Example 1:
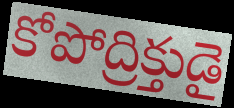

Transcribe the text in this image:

కోపోద్రిక్తుడై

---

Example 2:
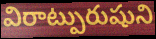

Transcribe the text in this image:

విరాట్పురుషుని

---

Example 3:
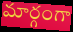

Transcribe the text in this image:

మార్గంగా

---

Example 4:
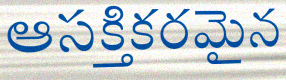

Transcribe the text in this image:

ఆసక్తికరమైన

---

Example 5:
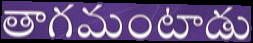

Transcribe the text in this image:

తాగమంటాడు